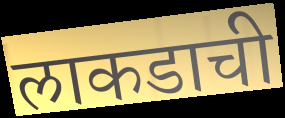
लाकडाची